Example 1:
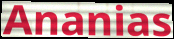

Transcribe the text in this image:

Ananias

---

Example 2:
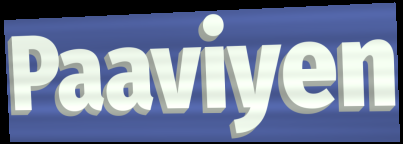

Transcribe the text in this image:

Paaviyen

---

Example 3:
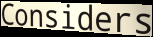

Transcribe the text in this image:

Considers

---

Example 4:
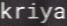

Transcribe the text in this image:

kriya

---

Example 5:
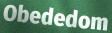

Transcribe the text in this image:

Obededom